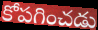
కోపగించడు